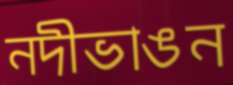
নদীভাঙন